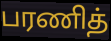
பரணித்